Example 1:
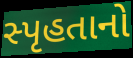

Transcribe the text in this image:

સ્પૃહતાનો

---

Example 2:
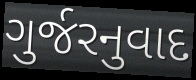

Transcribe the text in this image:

ગુર્જરનુવાદ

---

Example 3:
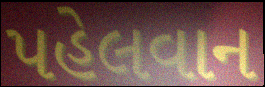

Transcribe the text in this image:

પહેલવાન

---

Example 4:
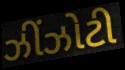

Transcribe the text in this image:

ઝીંઝોટી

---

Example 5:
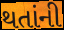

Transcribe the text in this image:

થતાંની